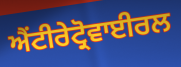
ਐਂਟੀਰੇਟ੍ਰੋਵਾਈਰਲ